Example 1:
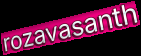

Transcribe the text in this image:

rozavasanth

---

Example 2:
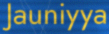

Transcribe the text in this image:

Jauniyya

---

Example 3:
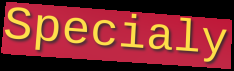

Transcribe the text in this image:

Specialy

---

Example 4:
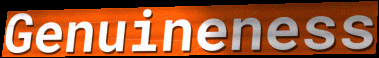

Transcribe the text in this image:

Genuineness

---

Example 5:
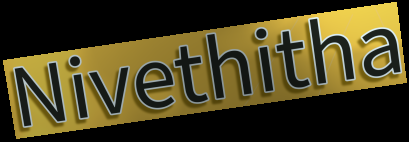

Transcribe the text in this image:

Nivethitha